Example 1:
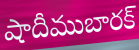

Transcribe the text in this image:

షాదీముబారక్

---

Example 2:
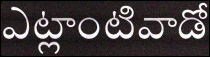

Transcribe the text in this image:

ఎట్లాంటివాడో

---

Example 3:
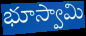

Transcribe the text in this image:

భూస్వామి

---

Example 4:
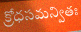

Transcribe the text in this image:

క్రోధసమన్వితః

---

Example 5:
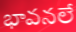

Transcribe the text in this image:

భావనలే